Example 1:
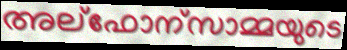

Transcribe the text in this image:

അല്ഫോന്സാമ്മയുടെ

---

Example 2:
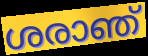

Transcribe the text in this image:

ശരാഞ്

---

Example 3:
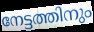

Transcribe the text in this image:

നേട്ടത്തിനും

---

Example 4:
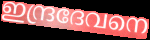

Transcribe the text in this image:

ഇന്ദ്രദേവനെ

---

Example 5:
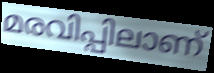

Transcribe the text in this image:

മരവിപ്പിലാണ്